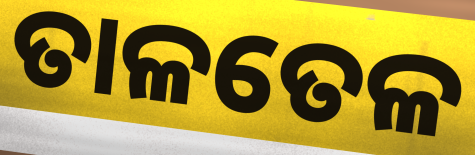
ତାଳତେଳ